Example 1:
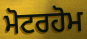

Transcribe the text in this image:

ਮੋਟਰਹੋਮ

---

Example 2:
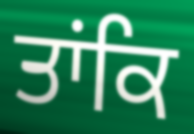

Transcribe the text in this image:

ਤਾਂਕਿ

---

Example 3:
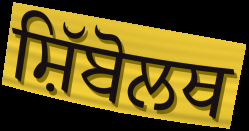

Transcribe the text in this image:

ਸ਼ਿੱਬੋਲਥ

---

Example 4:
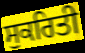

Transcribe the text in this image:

ਸੁਕਰਿਤੀ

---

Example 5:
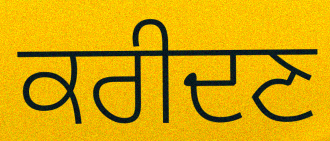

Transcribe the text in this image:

ਕਰੀਦਣ